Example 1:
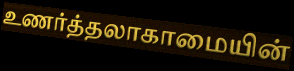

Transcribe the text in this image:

உணர்த்தலாகாமையின்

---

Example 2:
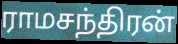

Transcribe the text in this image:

ராமசந்திரன்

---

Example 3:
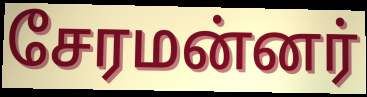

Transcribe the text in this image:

சேரமன்னர்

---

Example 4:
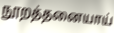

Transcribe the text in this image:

நூறத்தனையாய்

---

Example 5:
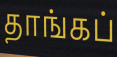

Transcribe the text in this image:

தாங்கப்